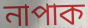
নাপাক